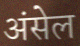
अंसेल